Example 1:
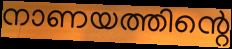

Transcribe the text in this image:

നാണയത്തിന്റെ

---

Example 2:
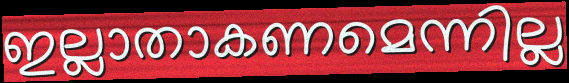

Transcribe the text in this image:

ഇല്ലാതാകണമെന്നില്ല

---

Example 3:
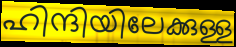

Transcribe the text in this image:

ഹിന്ദിയിലേക്കുള്ള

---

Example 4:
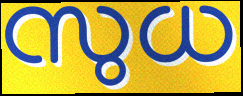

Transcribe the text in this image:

സുധ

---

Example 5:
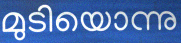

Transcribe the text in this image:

മുടിയൊന്നു